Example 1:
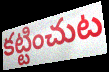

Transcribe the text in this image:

కట్టించుట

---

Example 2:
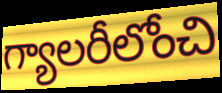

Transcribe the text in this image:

గ్యాలరీలోంచి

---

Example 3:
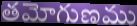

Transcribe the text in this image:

తమోగుణము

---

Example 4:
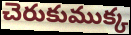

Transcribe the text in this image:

చెరుకుముక్క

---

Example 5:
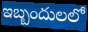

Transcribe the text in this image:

ఇబ్బందులలో